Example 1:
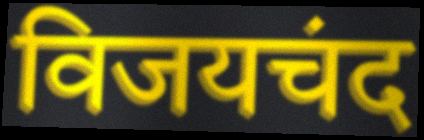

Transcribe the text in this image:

विजयचंद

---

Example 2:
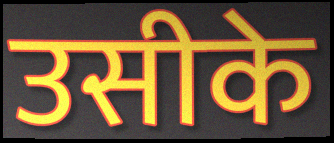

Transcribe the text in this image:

उसीके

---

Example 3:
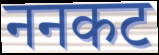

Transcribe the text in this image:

ननकट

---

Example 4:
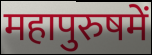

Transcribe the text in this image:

महापुरुषमें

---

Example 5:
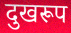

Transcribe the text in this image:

दुखरूप